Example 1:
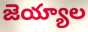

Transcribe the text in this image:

జెయ్యాల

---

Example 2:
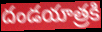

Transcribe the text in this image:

దండయాత్రకి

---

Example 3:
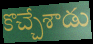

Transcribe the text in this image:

కొచ్చేశాడు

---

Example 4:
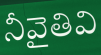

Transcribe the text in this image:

నీవైతివి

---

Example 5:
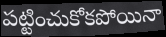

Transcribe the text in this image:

పట్టించుకోకపోయినా